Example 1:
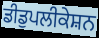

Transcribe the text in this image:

ਡੀਡੁਪਲੀਕੇਸ਼ਨ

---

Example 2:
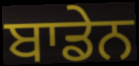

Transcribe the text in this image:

ਬਾਡੇਨ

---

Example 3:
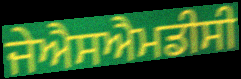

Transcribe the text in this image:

ਜੇਐਸਐਮਡੀਸੀ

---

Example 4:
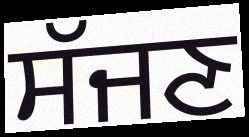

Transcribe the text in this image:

ਸੱਜਣ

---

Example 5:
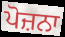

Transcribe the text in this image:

ਪੋਜ਼ਨਾ